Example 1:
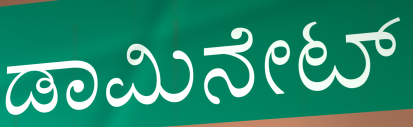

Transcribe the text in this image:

ಡಾಮಿನೇಟ್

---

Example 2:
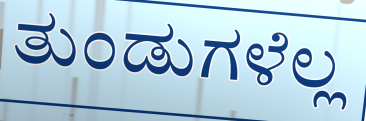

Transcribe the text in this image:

ತುಂಡುಗಳೆಲ್ಲ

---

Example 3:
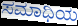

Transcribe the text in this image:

ಸಮಾಧಿಯ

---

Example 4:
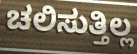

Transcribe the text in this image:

ಚಲಿಸುತ್ತಿಲ್ಲ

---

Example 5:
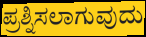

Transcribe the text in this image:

ಪ್ರಶ್ನಿಸಲಾಗುವುದು